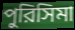
পুরিসিমা